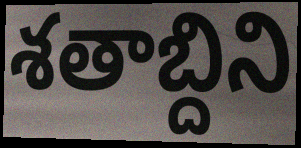
శతాబ్దిని